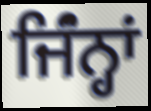
ਜਿੰਂਨ੍ਹਾਂ